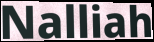
Nalliah